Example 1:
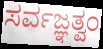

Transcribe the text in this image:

ಸರ್ವಜ್ಞತ್ವಂ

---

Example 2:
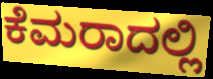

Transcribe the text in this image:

ಕೆಮರಾದಲ್ಲಿ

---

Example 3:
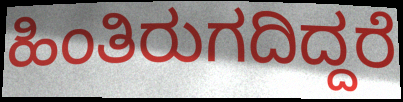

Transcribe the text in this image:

ಹಿಂತಿರುಗದಿದ್ದರೆ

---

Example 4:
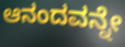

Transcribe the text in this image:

ಆನಂದವನ್ನೇ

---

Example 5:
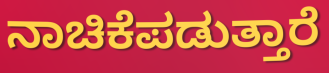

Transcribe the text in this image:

ನಾಚಿಕೆಪಡುತ್ತಾರೆ